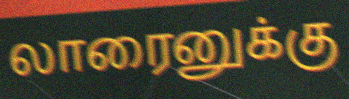
லாரைனுக்கு